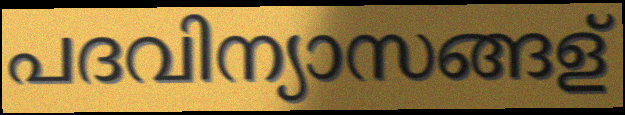
പദവിന്യാസങ്ങള്